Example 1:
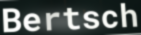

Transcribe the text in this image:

Bertsch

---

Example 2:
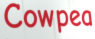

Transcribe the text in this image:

Cowpea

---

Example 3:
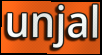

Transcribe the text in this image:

unjal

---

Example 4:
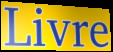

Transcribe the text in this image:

Livre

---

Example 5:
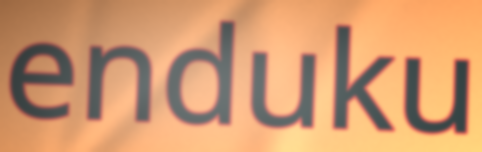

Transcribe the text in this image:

enduku